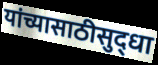
यांच्यासाठीसुद्धा